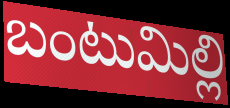
బంటుమిల్లి